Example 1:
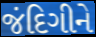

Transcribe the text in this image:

જંદિગીને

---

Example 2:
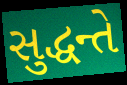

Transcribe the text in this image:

સુદ્ધન્તે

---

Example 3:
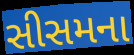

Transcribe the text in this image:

સીસમના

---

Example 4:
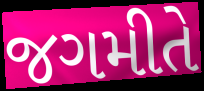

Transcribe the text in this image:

જગમીતે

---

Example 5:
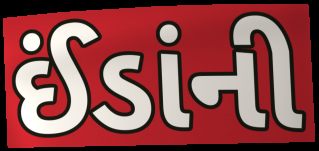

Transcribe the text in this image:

ઈંડાંની